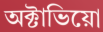
অক্টাভিয়ো